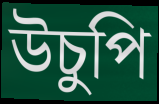
উচুপি